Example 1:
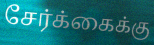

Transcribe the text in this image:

சேர்க்கைக்கு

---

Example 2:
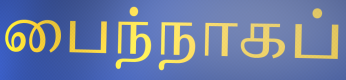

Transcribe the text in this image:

பைந்நாகப்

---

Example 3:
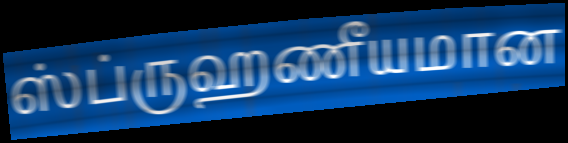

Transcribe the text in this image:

ஸ்ப்ருஹணீயமான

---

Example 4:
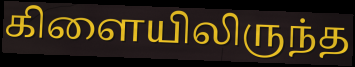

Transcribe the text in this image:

கிளையிலிருந்த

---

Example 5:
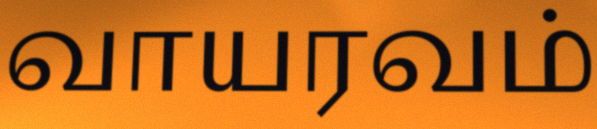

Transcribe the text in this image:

வாயரவம்